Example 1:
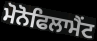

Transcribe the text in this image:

ਮੋਨੋਫਿਲਾਮੈਂਟ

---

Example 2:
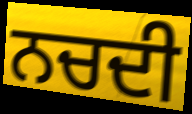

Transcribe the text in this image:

ਨਚਦੀ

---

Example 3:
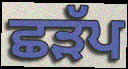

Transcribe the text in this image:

ਛੜੱਪ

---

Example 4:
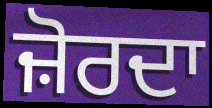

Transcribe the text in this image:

ਜ਼ੋਰਦਾ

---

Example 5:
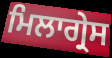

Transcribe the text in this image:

ਮਿਲਾਗ੍ਰੇਸ